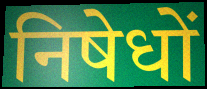
निषेधों